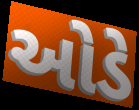
ઓડે